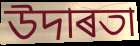
উদাৰতা